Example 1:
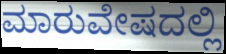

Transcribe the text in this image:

ಮಾರುವೇಷದಲ್ಲಿ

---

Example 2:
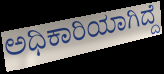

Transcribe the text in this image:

ಅಧಿಕಾರಿಯಾಗಿದ್ದೆ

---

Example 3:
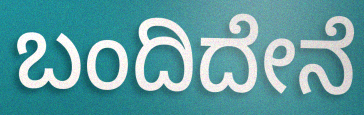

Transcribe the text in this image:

ಬಂದಿದೇನೆ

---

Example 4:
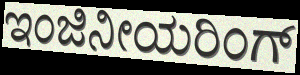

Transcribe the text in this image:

ಇಂಜಿನೀಯರಿಂಗ್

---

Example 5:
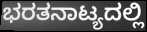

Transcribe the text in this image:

ಭರತನಾಟ್ಯದಲ್ಲಿ